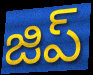
జిప్